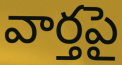
వార్తపై